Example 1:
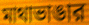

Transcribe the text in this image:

মাথাভাঙার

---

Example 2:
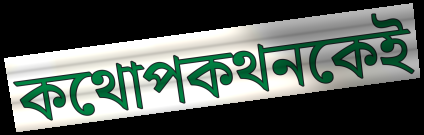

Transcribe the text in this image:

কথোপকথনকেই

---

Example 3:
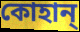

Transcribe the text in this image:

কোহান্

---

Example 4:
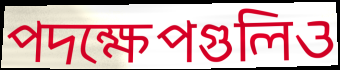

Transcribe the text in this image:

পদক্ষেপগুলিও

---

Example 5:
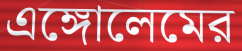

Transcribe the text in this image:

এঙ্গোলেমের